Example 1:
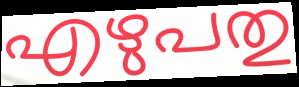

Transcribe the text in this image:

എഴുപതു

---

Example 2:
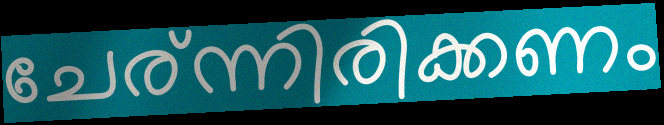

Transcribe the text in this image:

ചേര്ന്നിരിക്കണം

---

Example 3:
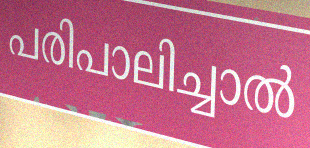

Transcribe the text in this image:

പരിപാലിച്ചാൽ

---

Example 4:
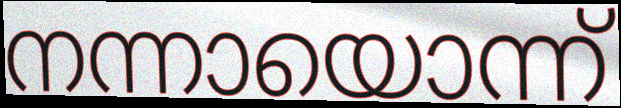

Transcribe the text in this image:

നന്നായൊന്ന്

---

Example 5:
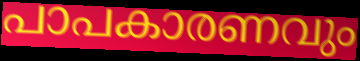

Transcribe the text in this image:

പാപകാരണവും